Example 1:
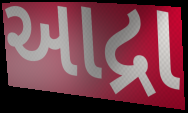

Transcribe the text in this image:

આદ્રા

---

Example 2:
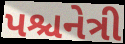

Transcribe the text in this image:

પશ્ચનેત્રી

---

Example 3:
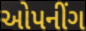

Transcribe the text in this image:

ઓપનીંગ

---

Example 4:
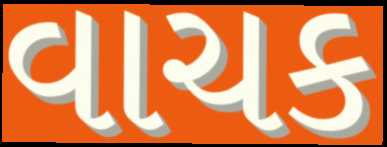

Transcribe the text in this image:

વાચક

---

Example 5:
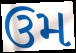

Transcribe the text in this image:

ઉમ